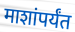
माशांपर्यंत